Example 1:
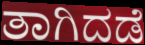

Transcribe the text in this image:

ತಾಗಿದಡೆ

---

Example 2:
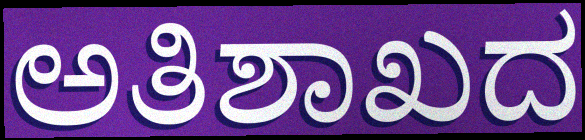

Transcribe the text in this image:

ಅತಿಶಾಖದ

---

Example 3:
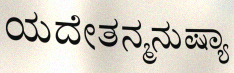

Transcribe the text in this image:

ಯದೇತನ್ಮನುಷ್ಯಾ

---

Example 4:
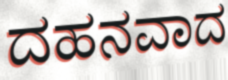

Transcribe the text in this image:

ದಹನವಾದ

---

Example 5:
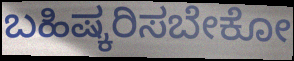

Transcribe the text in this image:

ಬಹಿಷ್ಕರಿಸಬೇಕೋ